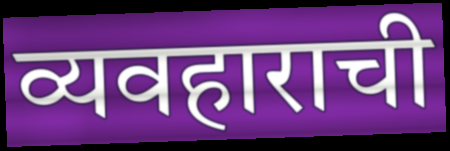
व्यवहाराची